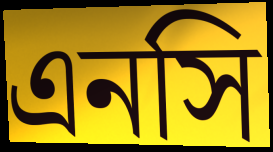
এনসি